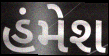
હંમેશ